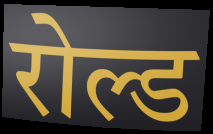
रोल्ड